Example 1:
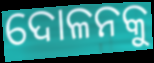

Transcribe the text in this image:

ଦୋଳନକୁ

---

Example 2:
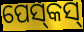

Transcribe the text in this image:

ପେସ୍‌କସ୍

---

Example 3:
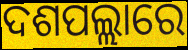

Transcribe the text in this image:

ଦଶପଲ୍ଲାରେ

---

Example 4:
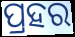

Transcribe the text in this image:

ପ୍ରହର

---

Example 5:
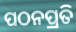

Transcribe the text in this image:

ପଠନପ୍ରତି